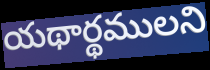
యథార్థములని